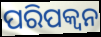
ପରିପକ୍ବନ